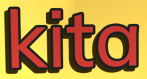
kita